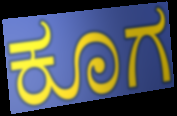
ಕೂಗ